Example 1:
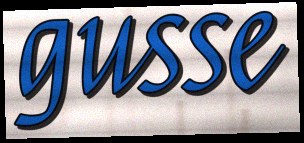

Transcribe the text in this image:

gusse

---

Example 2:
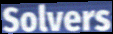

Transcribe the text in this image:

Solvers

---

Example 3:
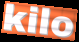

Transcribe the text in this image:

kilo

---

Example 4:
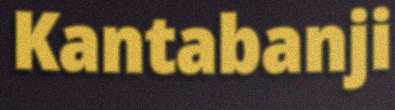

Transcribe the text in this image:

Kantabanji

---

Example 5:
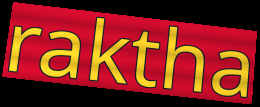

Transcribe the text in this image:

raktha